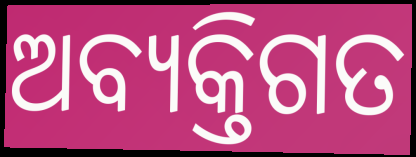
ଅବ୍ୟକ୍ତିଗତ